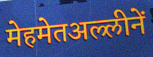
मेहमेतअल्लीनें